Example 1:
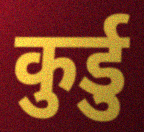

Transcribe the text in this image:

कुर्डु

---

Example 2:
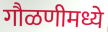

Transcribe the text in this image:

गौळणीमध्ये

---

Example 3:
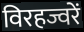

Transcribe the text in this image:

विरहज्वरें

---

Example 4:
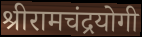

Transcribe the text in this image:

श्रीरामचंद्रयोगी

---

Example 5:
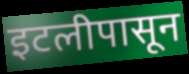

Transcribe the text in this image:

इटलीपासून